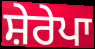
ਸ਼ੇਰੇਪਾ